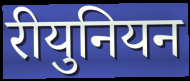
रीयुनियन